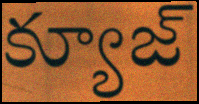
క్యూజ్